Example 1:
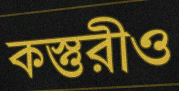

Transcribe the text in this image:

কস্তুরীও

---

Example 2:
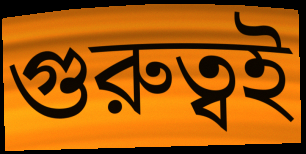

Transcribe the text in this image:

গুরুত্বই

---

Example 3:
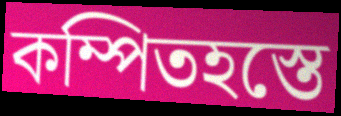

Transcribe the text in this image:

কম্পিতহস্তে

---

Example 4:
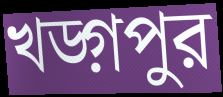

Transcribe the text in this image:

খড়্গপুর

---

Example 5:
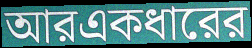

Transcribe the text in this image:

আরএকধারের